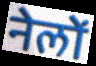
नेलों